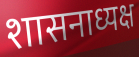
शासनाध्यक्ष